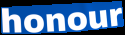
honour